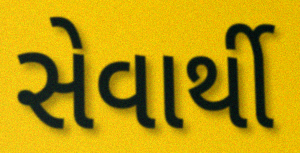
સેવાર્થી